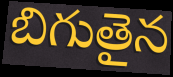
బిగుతైన